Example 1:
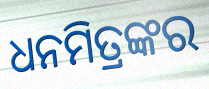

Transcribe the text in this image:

ଧନମିତ୍ରଙ୍କର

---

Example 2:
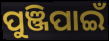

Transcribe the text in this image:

ପୁଞ୍ଜିପାଇଁ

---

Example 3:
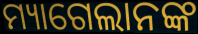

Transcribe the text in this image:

ମ୍ୟାଗେଲାନଙ୍କ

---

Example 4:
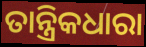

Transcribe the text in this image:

ତାନ୍ତ୍ରିକଧାରା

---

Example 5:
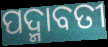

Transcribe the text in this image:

ପଦ୍ମାବତୀ